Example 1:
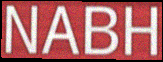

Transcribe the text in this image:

NABH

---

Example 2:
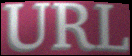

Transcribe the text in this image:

URL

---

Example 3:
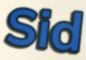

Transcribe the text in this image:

Sid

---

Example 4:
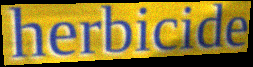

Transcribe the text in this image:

herbicide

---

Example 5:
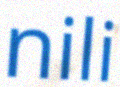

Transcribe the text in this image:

nili